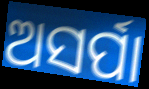
ଅସର୍ପା